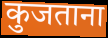
कुजताना